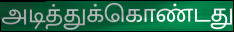
அடித்துக்கொண்டது